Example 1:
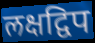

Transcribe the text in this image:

लक्षद्विप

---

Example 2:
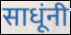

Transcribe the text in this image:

साधूंनी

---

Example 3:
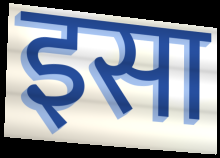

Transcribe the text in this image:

इसा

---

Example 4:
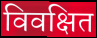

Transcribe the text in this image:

विवक्षित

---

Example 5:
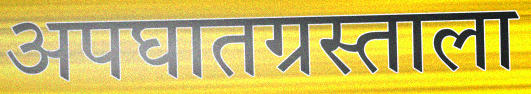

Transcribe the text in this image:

अपघातग्रस्ताला